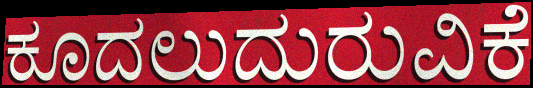
ಕೂದಲುದುರುವಿಕೆ